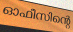
ഓഫീസിന്റെ